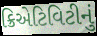
ક્રિએટિવિટીનું